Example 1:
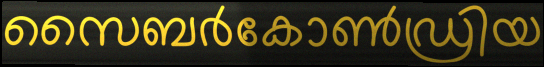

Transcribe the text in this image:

സൈബർകോൺഡ്രിയ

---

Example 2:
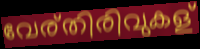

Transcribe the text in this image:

വേര്തിരിവുകള്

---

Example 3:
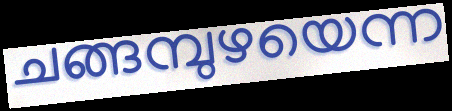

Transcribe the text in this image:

ചങ്ങമ്പുഴയെന്ന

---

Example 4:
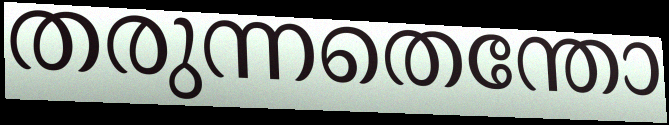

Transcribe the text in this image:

തരുന്നതെന്തോ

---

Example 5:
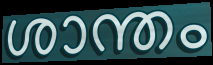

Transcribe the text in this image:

ശാന്തം